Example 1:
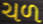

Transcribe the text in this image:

ચળ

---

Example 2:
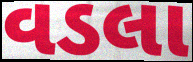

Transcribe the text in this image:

વડલા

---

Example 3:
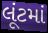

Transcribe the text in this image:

લૂંટમાં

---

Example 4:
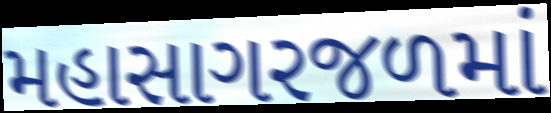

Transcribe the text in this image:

મહાસાગરજળમાં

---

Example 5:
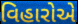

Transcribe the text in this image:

વિહારોએ